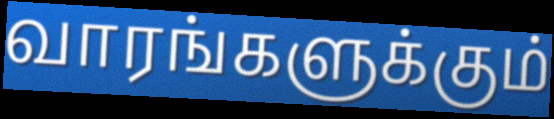
வாரங்களுக்கும்